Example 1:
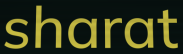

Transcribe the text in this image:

sharat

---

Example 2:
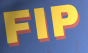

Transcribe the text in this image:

FIP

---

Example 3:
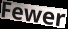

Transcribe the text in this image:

Fewer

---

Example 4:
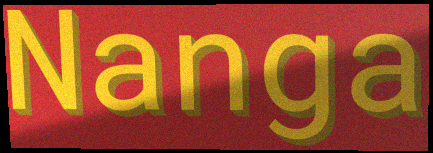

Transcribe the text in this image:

Nanga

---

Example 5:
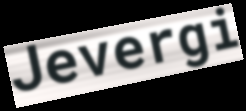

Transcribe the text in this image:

Jevergi